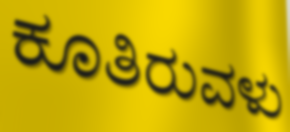
ಕೂತಿರುವಳು